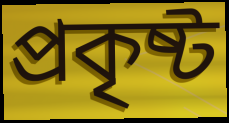
প্ৰকৃষ্ট